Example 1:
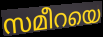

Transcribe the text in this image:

സമീറയെ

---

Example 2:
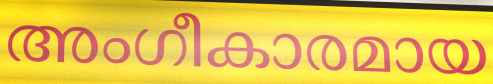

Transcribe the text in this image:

അംഗീകാരമായ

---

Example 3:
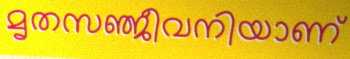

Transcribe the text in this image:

മൃതസഞ്ജീവനിയാണ്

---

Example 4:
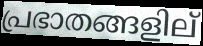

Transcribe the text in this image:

പ്രഭാതങ്ങളില്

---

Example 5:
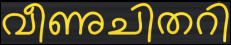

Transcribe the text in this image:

വീണുചിതറി